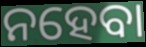
ନହେବା